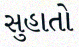
સુહાતો